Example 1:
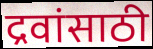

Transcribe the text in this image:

द्रवांसाठी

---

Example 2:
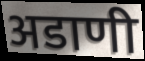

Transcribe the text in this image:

अडाणी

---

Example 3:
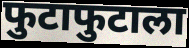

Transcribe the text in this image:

फुटाफुटाला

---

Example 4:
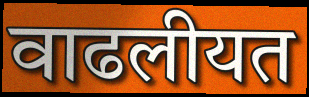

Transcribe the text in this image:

वाढलीयत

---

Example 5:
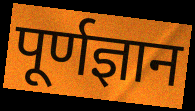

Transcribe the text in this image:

पूर्णज्ञान